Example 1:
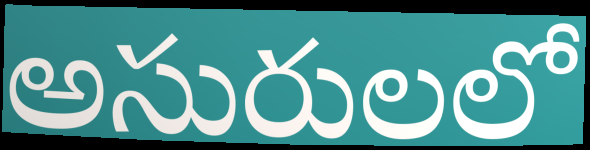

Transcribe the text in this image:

అసురులలో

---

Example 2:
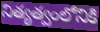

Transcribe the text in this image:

నిత్యత్వంలోనికి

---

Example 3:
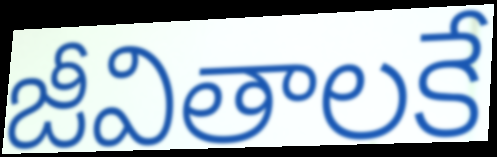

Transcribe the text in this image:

జీవితాలకే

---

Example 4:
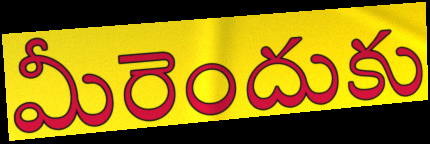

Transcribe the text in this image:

మీరెందుకు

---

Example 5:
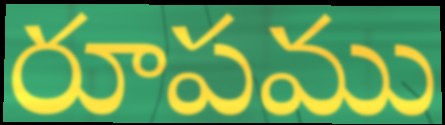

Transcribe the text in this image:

రూపము